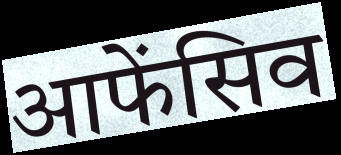
आफेंसिव